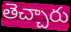
తెచ్చారు